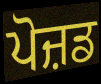
ਪੋਜ਼ਡ